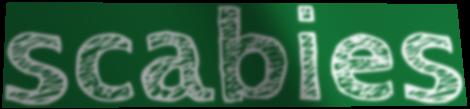
scabies